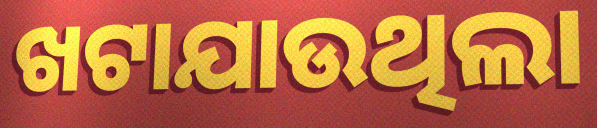
ଖଟାଯାଉଥିଲା